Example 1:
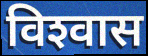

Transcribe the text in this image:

विश्‍वास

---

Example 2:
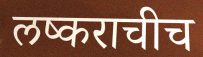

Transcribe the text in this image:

लष्कराचीच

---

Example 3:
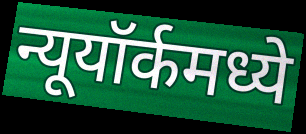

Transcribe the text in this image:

न्यूयॉर्कमध्ये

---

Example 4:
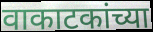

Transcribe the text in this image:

वाकाटकांच्या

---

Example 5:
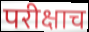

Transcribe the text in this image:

परीक्षाच